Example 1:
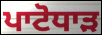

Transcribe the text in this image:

ਪਾਟੋਧਾੜ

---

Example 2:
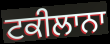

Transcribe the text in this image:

ਟਕੀਲਾਨਾ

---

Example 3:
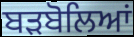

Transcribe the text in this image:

ਬੜਬੋਲਿਆਂ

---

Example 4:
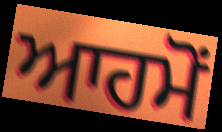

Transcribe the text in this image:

ਆਹਮੋਂ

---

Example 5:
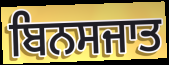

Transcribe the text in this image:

ਬਿਨਸਜਾਤ